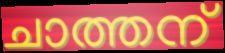
ചാത്തന്